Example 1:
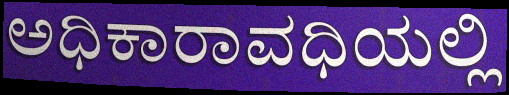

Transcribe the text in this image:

ಅಧಿಕಾರಾವಧಿಯಲ್ಲಿ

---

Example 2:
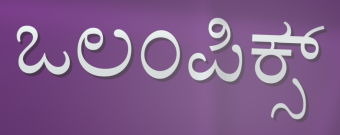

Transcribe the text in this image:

ಒಲಂಪಿಕ್ಸ್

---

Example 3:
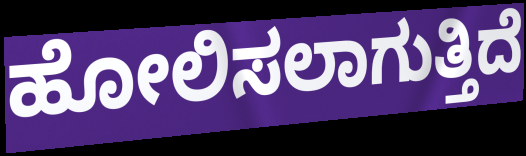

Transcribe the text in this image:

ಹೋಲಿಸಲಾಗುತ್ತಿದೆ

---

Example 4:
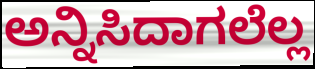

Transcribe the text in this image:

ಅನ್ನಿಸಿದಾಗಲೆಲ್ಲ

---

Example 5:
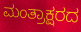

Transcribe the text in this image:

ಮಂತ್ರಾಕ್ಷರದ